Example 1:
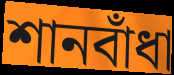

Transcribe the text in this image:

শানবাঁধা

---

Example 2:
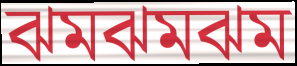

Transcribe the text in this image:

ঝমঝমঝম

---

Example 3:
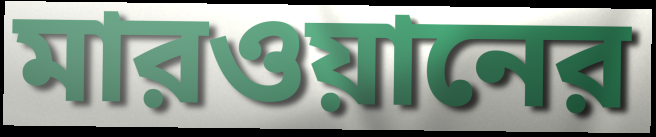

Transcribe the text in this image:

মারওয়ানের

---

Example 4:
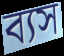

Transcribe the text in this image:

ব্যস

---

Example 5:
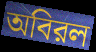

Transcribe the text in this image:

অবিরল